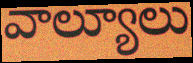
వాల్యూలు